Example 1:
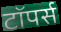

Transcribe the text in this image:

टॉपर्स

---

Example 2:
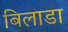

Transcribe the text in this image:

बिलाडा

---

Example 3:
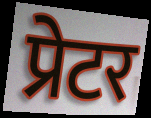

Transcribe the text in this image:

प्रेटर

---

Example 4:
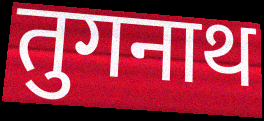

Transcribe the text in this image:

तुगनाथ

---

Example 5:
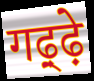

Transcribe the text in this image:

गढ़्ढ़े